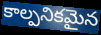
కాల్పనికమైన